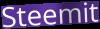
Steemit